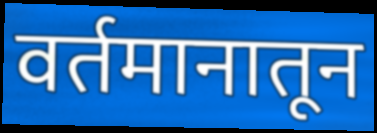
वर्तमानातून